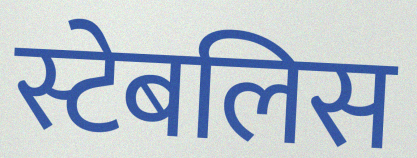
स्टेबलिस